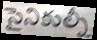
సైనికుల్నీ